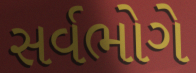
સર્વભોગે